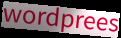
wordprees